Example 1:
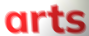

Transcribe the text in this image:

arts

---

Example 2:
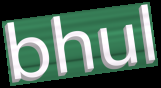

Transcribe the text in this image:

bhul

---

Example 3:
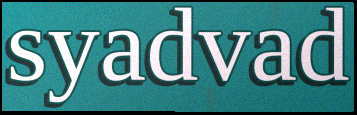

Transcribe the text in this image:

syadvad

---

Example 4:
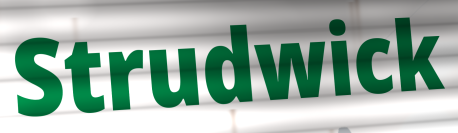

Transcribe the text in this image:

Strudwick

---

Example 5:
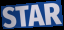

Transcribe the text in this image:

STAR